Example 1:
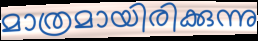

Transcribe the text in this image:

മാത്രമായിരിക്കുന്നു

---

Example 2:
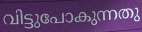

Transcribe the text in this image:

വിട്ടുപോകുന്നതു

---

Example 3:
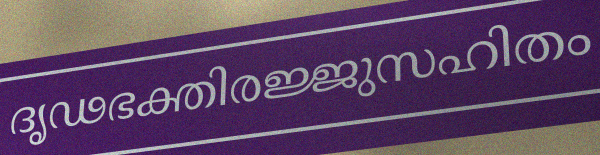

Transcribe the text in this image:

ദൃഢഭക്തിരജ്ജുസഹിതം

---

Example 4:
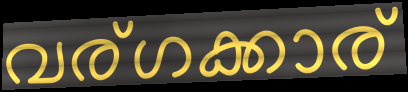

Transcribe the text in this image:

വര്ഗക്കാര്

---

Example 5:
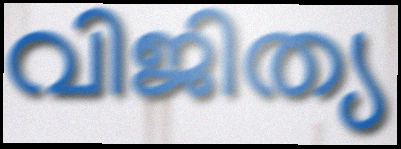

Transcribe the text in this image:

വിജിത്യ